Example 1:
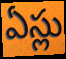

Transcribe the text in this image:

ఏస్లు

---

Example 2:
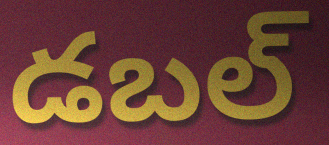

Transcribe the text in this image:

డబల్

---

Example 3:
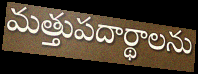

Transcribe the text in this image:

మత్తుపదార్థాలను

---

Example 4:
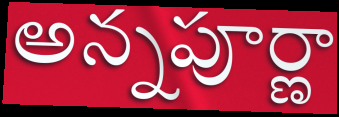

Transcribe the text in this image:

అన్నపూర్ణా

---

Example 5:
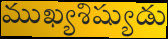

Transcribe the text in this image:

ముఖ్యశిష్యుడు